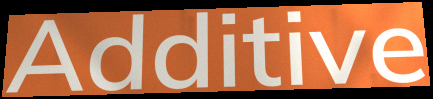
Additive